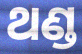
ଥଣ୍ଡ